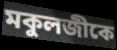
মকুলজীকে